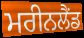
ਮਰੀਨਲੈਂਡ